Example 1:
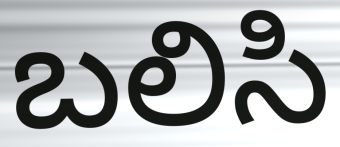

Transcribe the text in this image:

బలిసి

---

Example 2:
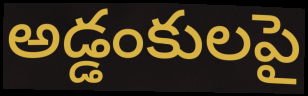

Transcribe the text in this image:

అడ్డంకులపై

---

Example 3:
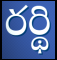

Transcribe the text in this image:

రర్థి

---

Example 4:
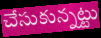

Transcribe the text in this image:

చేసుకున్నట్టు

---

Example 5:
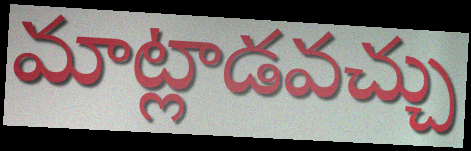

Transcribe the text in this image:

మాట్లాడవచ్చు